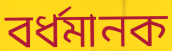
বর্ধমানক